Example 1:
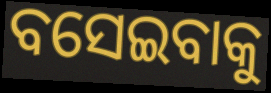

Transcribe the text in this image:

ବସେଇବାକୁ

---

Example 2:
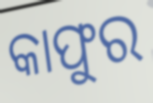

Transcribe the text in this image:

କାଫୁର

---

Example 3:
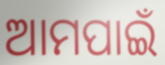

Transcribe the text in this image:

ଆମପାଇଁ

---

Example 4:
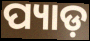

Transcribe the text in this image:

ପ୍ୟାଡ଼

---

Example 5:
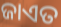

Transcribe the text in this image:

ଜାଏତ